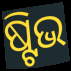
ଷ୍ଟିଭ